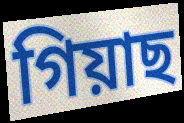
গিয়াছ